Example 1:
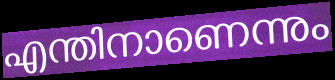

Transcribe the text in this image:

എന്തിനാണെന്നും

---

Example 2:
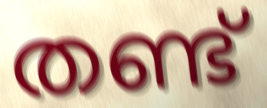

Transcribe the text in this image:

തണ്ട്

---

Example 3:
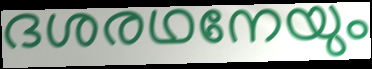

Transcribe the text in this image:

ദശരഥനേയും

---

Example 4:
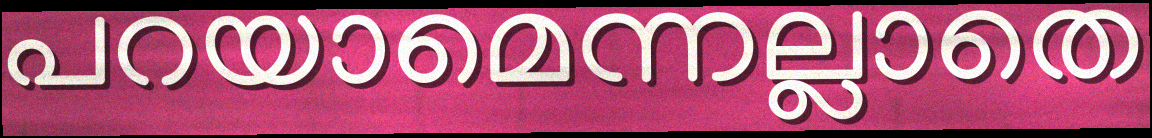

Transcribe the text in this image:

പറയാമെന്നല്ലാതെ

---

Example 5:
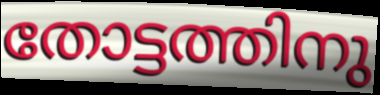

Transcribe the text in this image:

തോട്ടത്തിനു